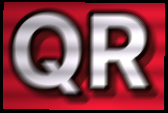
QR